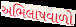
અભિલાષવાળો